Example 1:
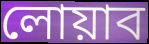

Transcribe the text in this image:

লোয়াব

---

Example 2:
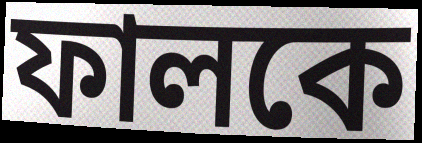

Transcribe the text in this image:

ফালকে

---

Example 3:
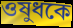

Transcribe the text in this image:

ওষুধকে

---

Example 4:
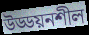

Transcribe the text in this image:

উড্ডয়নশীল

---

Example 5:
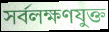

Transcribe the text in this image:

সর্বলক্ষণযুক্ত